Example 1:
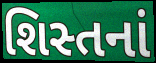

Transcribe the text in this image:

શિસ્તનાં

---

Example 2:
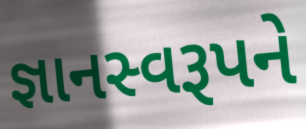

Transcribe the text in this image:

જ્ઞાનસ્વરૂપને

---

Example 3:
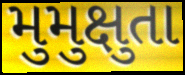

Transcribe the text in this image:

મુમુક્ષુતા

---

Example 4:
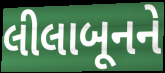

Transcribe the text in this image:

લીલાબૂનને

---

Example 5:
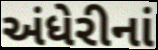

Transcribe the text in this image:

અંધેરીનાં